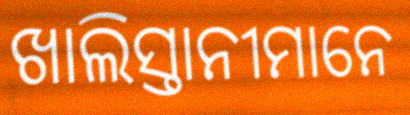
ଖାଲିସ୍ତାନୀମାନେ